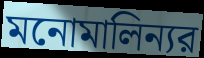
মনোমালিন্যর